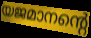
യജമാനന്റെ